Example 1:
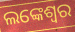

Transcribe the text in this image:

ଲଙ୍କେଶ୍ବର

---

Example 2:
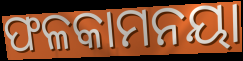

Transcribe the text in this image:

ଫଳକାମନୟା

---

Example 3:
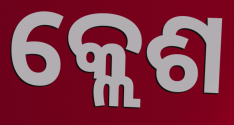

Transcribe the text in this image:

କ୍ଲେଶ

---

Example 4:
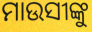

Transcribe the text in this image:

ମାଉସୀଙ୍କୁ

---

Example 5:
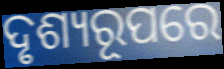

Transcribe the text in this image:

ଦୃଶ୍ୟରୂପରେ